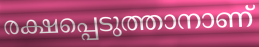
രക്ഷപ്പെടുത്താനാണ്